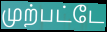
முற்பட்டே